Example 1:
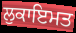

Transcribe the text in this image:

ਲੁਕਾਇਮਤ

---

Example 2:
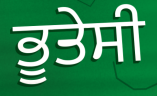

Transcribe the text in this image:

ਭੂਤੇਸੀ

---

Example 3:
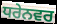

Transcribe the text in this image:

ਧਰੇਨਵਰ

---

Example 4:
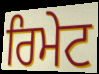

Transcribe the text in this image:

ਰਿਮੇਟ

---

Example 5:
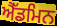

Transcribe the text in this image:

ਐੱਡਮਿਨ